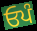
ਓਪੰ